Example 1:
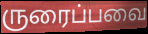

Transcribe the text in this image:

ருரைப்பவை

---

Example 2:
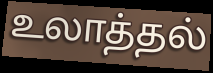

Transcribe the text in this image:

உலாத்தல்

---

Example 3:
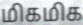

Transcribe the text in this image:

மிகமிக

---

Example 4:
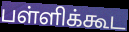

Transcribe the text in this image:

பள்ளிக்கூட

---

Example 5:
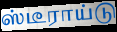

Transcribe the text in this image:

ஸ்டீராய்டு